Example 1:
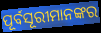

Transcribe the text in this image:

ପୂର୍ବସୂରୀମାନଙ୍କର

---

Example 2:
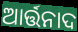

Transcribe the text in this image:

ଆର୍ତ୍ତନାଦ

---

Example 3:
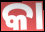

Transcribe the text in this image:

କା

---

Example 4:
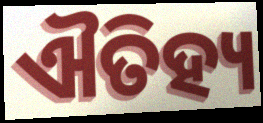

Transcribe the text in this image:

ଐତିହ୍ୟ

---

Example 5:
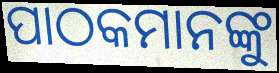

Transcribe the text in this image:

ପାଠକମାନଙ୍କୁ